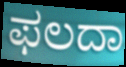
ಫಲದಾ